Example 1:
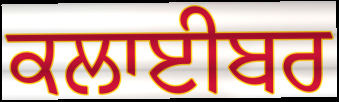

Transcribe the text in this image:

ਕਲਾਈਬਰ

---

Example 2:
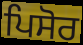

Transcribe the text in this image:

ਪਿਸੋਰ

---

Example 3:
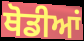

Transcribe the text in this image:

ਥੋਡੀਆਂ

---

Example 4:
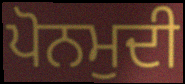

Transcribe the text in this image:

ਪੋਨਮੁਦੀ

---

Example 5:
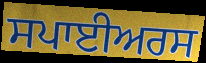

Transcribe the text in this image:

ਸਪਾਈਅਰਸ